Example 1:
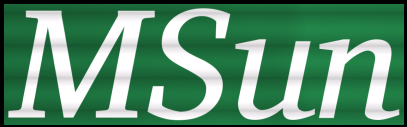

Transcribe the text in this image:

MSun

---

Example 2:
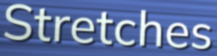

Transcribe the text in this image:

Stretches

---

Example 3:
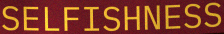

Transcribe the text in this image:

SELFISHNESS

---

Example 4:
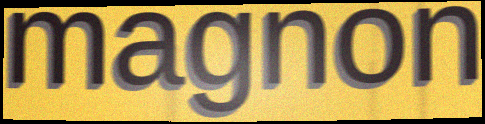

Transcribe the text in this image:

magnon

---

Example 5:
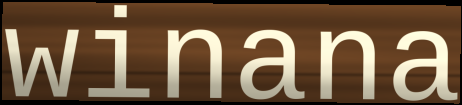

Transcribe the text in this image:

winana